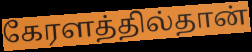
கேரளத்தில்தான்